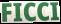
FICCI